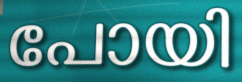
പോയി